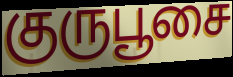
குருபூசை